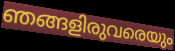
ഞങ്ങളിരുവരെയും